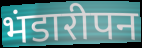
भंडारीपन